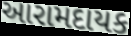
આરામદાયક